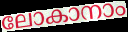
ലോകാനാം